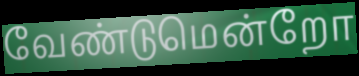
வேண்டுமென்றோ